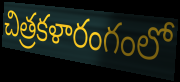
చిత్రకళారంగంలో